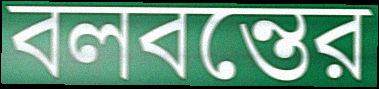
বলবন্তের